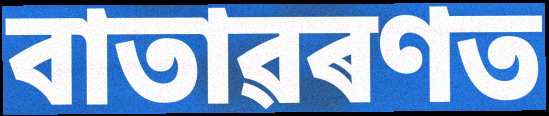
বাতাৱৰণত